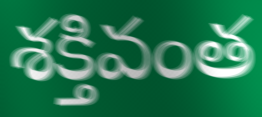
శక్తివంత